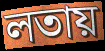
লতায়